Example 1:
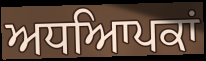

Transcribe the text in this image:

ਅਧਆਿਪਕਾਂ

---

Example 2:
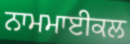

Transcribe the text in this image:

ਨਾਮਮਾਈਕਲ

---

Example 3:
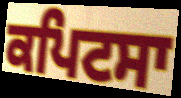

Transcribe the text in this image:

ਕਪਿਟਸਾ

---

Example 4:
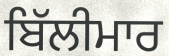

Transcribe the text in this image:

ਬਿੱਲੀਮਾਰ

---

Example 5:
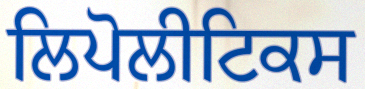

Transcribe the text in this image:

ਲਿਪੋਲੀਟਿਕਸ